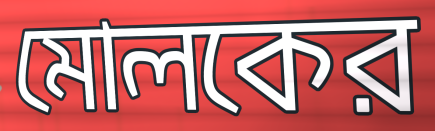
মোলকের